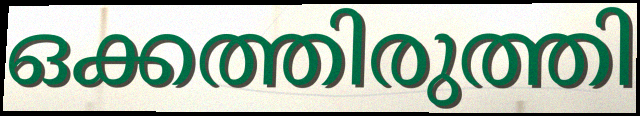
ഒക്കത്തിരുത്തി